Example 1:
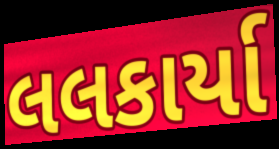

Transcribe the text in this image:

લલકાર્યા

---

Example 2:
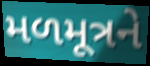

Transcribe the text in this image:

મળમૂત્રને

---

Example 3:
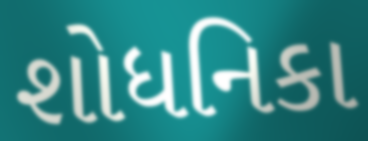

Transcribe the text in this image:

શોધનિકા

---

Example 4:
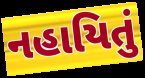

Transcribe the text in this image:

નહાયિતું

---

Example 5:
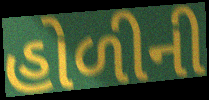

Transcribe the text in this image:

હોળીની